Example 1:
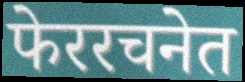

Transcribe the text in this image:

फेररचनेत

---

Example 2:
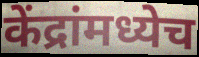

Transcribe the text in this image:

केंद्रांमध्येच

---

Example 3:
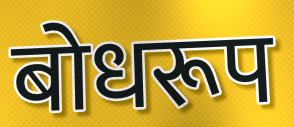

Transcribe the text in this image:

बोधरूप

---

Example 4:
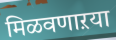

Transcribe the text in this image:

मिळवणाऱया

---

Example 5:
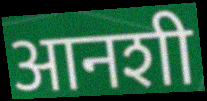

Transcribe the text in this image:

आनशी